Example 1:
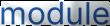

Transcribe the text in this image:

module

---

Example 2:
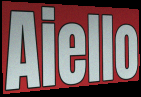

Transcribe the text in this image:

Aiello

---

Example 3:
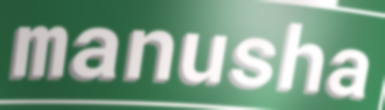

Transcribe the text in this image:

manusha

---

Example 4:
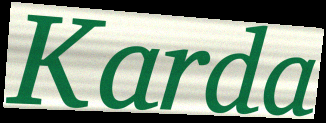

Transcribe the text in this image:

Karda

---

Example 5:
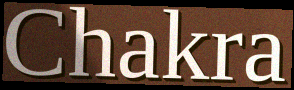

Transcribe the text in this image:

Chakra